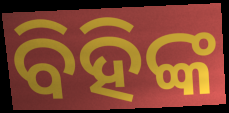
ବିହିଙ୍କ